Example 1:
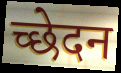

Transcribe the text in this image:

च्छेदन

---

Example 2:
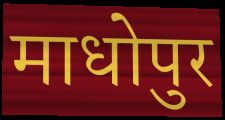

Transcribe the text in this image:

माधोपुर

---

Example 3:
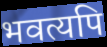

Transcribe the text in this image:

भवत्यपि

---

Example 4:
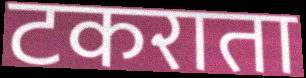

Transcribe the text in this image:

टकराता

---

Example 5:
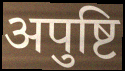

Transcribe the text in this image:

अपुष्टि